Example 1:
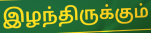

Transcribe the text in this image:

இழந்திருக்கும்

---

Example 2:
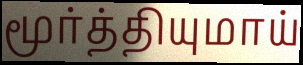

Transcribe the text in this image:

மூர்த்தியுமாய்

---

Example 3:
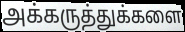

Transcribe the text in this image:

அக்கருத்துக்களை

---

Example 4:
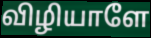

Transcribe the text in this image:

விழியாளே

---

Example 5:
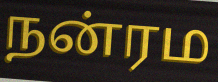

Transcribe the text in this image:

நன்ரம